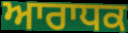
ਆਰਾਧਕ